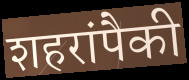
शहरांपैकी